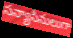
సన్యాసినులుగా